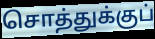
சொத்துக்குப்